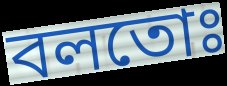
বলতোঃ